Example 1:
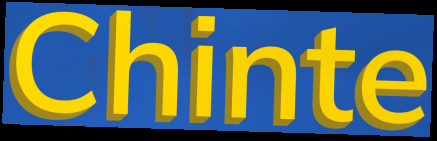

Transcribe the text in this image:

Chinte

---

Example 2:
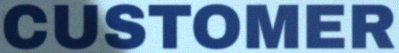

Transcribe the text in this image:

CUSTOMER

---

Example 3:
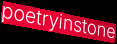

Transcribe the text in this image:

poetryinstone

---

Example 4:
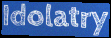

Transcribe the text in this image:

Idolatry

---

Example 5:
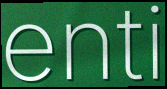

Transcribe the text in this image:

enti